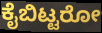
ಕೈಬಿಟ್ಟರೋ